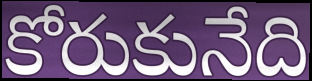
కోరుకునేది